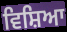
ਵਿਸ਼ਿਆ